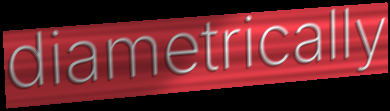
diametrically